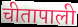
चीतापाली